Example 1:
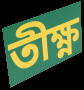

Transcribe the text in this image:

তীক্ষ্ণ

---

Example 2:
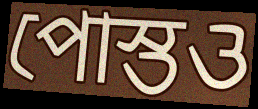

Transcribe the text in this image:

পোস্তও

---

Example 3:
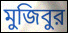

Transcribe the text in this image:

মুজিবুর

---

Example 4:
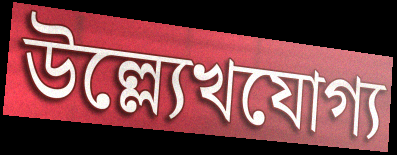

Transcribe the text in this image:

উল্ল্যেখযোগ্য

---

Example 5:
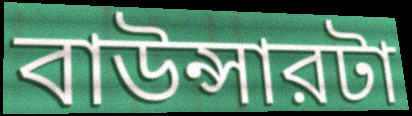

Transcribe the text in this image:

বাউন্সারটা